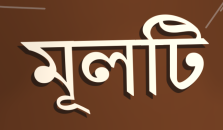
মূলটি